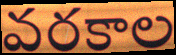
వరకాల